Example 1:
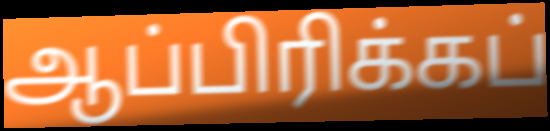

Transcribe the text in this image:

ஆப்பிரிக்கப்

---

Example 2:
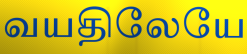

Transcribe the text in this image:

வயதிலேயே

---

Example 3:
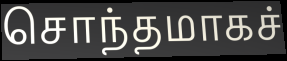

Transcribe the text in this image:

சொந்தமாகச்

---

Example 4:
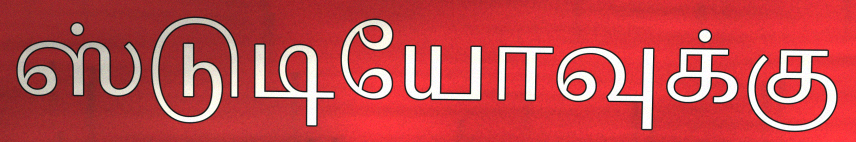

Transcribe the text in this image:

ஸ்டுடியோவுக்கு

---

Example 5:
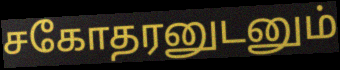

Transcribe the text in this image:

சகோதரனுடனும்